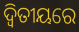
ଦ୍ୱିତୀୟରେ